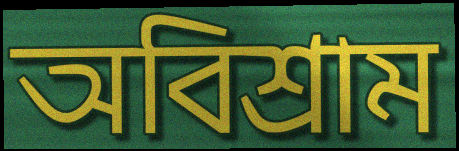
অবিশ্রাম